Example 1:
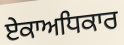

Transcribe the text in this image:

ਏਕਾਅਧਿਕਾਰ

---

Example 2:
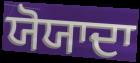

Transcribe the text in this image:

ਯੋਯਾਦਾ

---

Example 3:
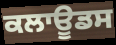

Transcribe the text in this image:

ਕਲਾਊਡਸ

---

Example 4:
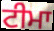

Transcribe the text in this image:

ਟੀਮਾ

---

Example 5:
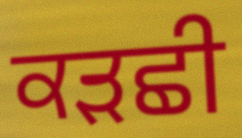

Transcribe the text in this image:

ਕੜਛੀ